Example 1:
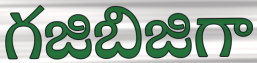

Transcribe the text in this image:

గజిబిజిగా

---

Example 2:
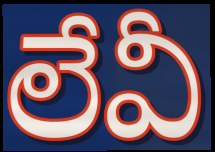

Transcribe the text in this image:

లేవీ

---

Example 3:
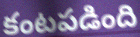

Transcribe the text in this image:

కంటపడింది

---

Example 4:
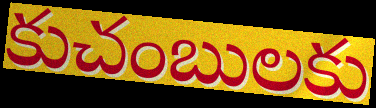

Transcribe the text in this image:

కుచంబులకు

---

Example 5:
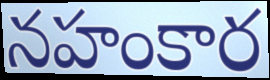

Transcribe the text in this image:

నహంకార